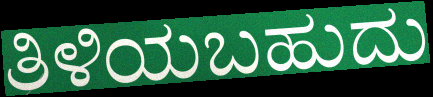
ತಿಳಿಯಬಹುದು